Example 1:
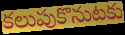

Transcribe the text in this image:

కలుపుకొనుటకు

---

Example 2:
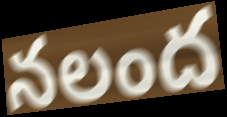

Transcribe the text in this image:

నలంద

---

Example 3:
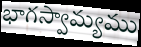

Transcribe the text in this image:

భాగస్వామ్యము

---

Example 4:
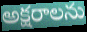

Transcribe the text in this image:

అక్షరాలను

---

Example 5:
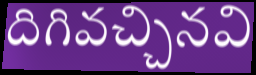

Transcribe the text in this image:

దిగివచ్చినవి